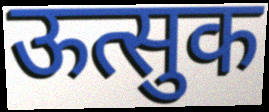
ऊत्सुक